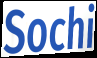
Sochi